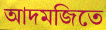
আদমজিতে